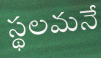
స్థలమనే